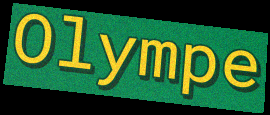
Olympe